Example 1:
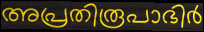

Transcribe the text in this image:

അപ്രതിരൂപാഭിർ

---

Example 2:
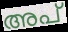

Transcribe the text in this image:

അപ്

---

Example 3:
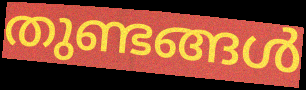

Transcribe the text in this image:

തുണ്ടങ്ങൾ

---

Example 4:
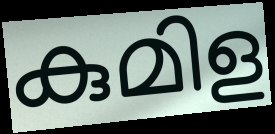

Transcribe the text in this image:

കുമിള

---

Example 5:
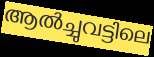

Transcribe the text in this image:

ആൽച്ചുവട്ടിലെ